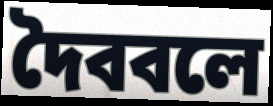
দৈববলে